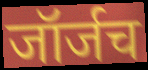
जॉर्जच